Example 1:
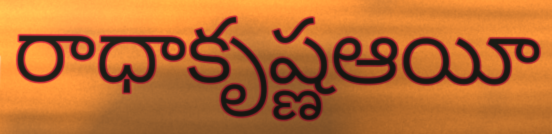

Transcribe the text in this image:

రాధాకృష్ణఆయీ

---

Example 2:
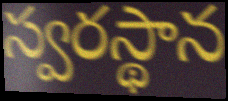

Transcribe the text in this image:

స్వరస్థాన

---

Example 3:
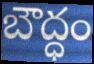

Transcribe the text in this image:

బౌద్ధం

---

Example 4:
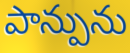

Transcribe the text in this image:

పాన్పును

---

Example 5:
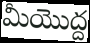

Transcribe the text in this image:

మీయొద్ద